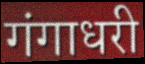
गंगाधरी